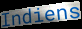
Indiens